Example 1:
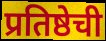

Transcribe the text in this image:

प्रतिष्ठेची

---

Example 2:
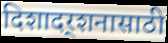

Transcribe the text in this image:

दिशादर्शनासाठी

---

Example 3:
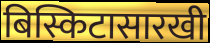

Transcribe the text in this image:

बिस्किटासारखी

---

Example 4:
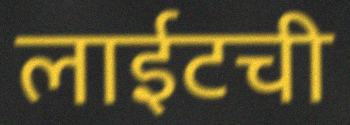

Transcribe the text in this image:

लाईटची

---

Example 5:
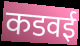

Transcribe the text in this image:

कडवई